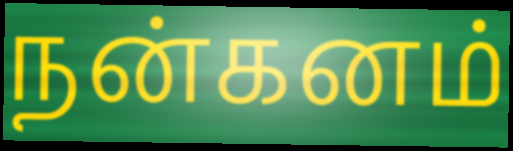
நன்கனம்